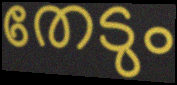
തേടും